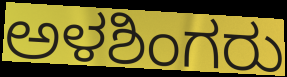
ಅಳಶಿಂಗರು